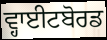
ਵ੍ਹਾਈਟਬੋਰਡ